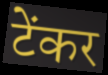
टेंकर